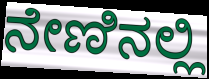
ನೇಣಿನಲ್ಲಿ